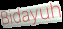
Bidayuh